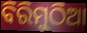
ବିରିମୁଠିଆ